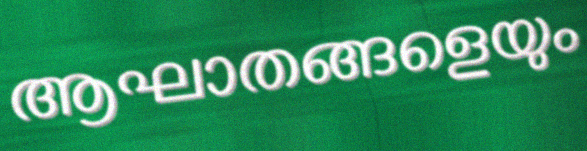
ആഘാതങ്ങളെയും